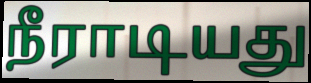
நீராடியது